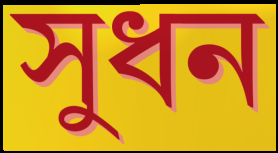
সুধন